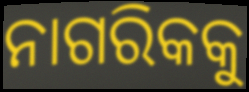
ନାଗରିକକୁ